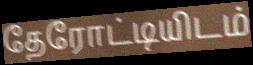
தேரோட்டியிடம்